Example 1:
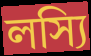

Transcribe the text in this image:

লস্যি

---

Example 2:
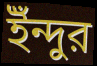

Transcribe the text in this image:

ইঁন্দুর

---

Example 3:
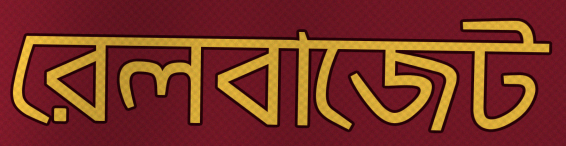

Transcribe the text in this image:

রেলবাজেট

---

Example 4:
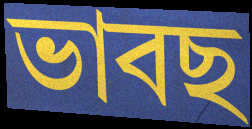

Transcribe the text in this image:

ভাবছ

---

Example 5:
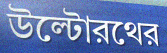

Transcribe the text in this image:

উল্টোরথের